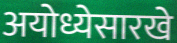
अयोध्येसारखे